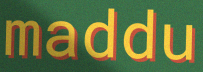
maddu